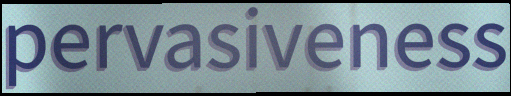
pervasiveness